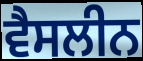
ਵੈਸਲੀਨ